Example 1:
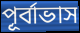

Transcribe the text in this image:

পূর্বাভাস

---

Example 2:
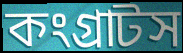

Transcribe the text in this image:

কংগ্রাটস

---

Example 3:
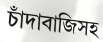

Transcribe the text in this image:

চাঁদাবাজিসহ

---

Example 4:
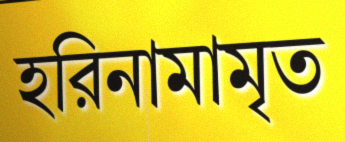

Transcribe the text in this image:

হরিনামামৃত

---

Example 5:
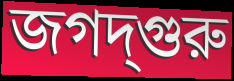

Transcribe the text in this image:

জগদ্‌গুরু